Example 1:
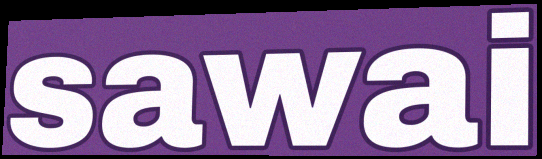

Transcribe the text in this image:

sawai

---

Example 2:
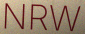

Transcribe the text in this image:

NRW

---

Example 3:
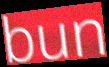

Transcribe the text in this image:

bun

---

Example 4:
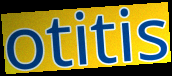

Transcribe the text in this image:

otitis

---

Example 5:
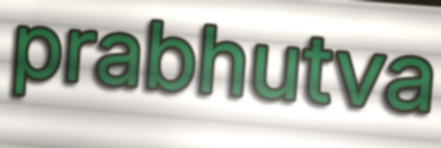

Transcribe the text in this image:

prabhutva